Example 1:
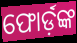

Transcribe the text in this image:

ଫୋର୍ଡ଼ଙ୍କ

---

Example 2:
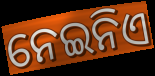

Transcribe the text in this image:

ନେଇନିଏ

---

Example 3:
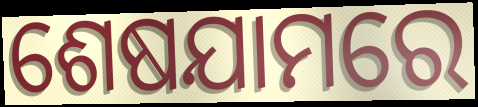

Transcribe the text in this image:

ଶେଷଯାମରେ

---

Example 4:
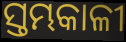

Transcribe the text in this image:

ସ୍ତମ୍ଭକାଳୀ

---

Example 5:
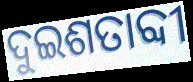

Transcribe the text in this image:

ଦୁଇଶତାବ୍ଦୀ